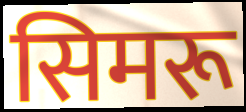
सिमरू